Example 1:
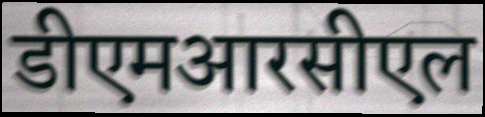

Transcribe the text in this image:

डीएमआरसीएल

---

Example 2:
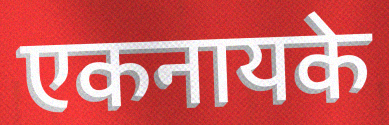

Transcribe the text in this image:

एकनायके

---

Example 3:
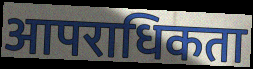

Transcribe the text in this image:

आपराधिकता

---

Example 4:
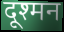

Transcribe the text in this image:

दूश्मन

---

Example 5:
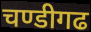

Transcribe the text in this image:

चण्डीगढ